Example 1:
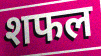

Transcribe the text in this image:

शफल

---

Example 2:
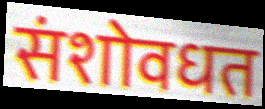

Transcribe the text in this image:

संशोवधत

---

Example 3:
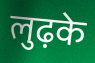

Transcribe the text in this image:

लुढ़के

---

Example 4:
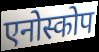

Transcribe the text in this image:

एनोस्कोप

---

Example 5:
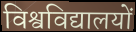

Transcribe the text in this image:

विश्वविद्यालयों